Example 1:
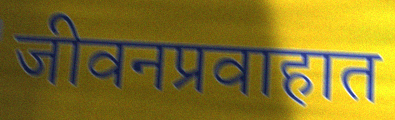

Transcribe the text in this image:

जीवनप्रवाहात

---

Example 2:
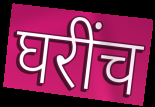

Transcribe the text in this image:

घरींच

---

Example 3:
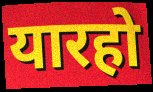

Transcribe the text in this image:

यारहो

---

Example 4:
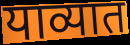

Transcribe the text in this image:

याव्यात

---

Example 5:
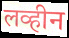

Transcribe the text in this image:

लव्हीन